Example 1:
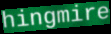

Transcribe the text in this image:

hingmire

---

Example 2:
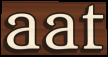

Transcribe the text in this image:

aat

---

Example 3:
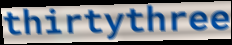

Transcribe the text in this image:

thirtythree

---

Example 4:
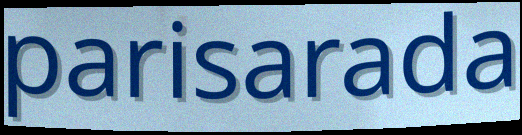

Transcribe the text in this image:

parisarada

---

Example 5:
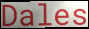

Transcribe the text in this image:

Dales